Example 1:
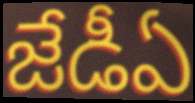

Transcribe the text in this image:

జేడీఏ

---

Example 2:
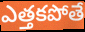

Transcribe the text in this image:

ఎత్తకపోతే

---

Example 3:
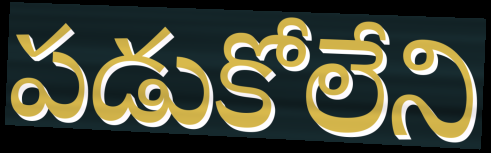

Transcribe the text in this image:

పడుకోలేని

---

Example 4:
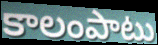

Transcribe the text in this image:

కాలంపాటు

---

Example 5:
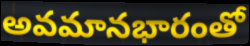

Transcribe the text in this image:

అవమానభారంతో